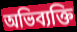
অভিব্যক্তি